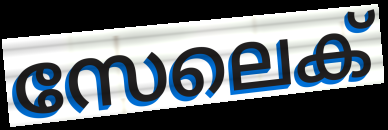
സേലെക്